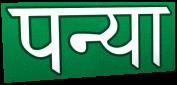
पन्या